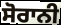
ਸੋਰਾਨੀ